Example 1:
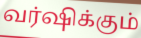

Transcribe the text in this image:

வர்ஷிக்கும்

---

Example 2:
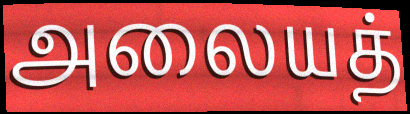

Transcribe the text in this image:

அலையத்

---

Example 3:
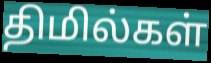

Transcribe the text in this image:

திமில்கள்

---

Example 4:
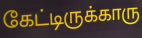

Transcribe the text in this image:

கேட்டிருக்காரு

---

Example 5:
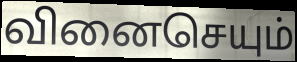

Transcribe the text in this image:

வினைசெயும்